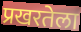
प्रखरतेला